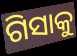
ଗିସାକୁ